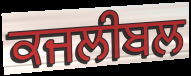
ਕਜਲੀਬਲ